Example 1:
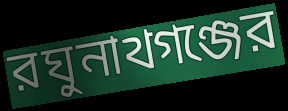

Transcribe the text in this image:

রঘুনাথগঞ্জের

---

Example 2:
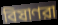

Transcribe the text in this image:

বিষাণরা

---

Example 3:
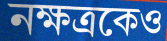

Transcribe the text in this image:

নক্ষত্রকেও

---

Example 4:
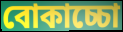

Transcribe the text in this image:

বোকাচ্চো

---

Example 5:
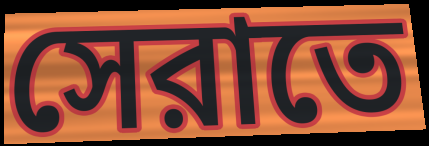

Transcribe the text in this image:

সেরাতে